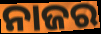
ନାଜର